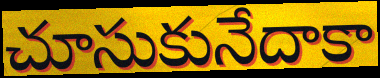
చూసుకునేదాకా